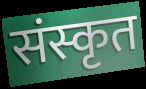
संस्‍कृत